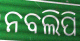
ନବଲିପି